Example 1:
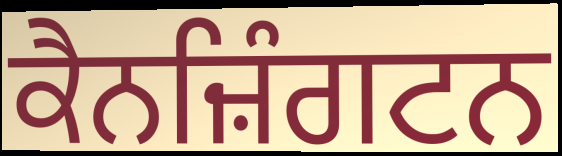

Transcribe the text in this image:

ਕੈਨਜ਼ਿੰਗਟਨ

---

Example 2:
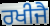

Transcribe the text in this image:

ਰਖੀਜੈ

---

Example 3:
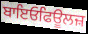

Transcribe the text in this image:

ਬਾਇਓਫਿਊਲਜ਼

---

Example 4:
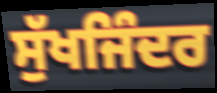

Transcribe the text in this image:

ਸੁੱਖਜਿੰਦਰ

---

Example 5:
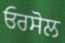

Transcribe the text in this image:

ਓਰਸੋਲ